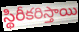
స్థిరీకరిస్తాయి